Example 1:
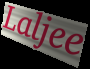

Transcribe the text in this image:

Laljee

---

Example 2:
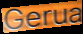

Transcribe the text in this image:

Gerua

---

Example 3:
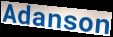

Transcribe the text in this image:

Adanson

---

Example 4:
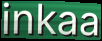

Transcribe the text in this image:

inkaa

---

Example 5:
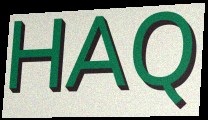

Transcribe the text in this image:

HAQ